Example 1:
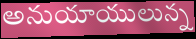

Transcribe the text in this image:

అనుయాయులున్న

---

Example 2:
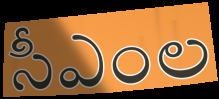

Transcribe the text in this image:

సీఎంల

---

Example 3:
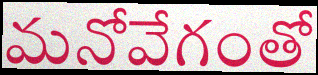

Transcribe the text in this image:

మనోవేగంతో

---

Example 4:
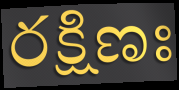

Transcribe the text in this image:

రక్షిణః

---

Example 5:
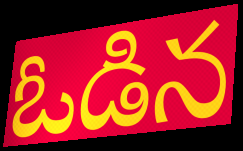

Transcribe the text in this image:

ఓడిన